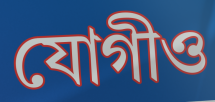
যোগীও